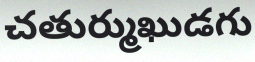
చతుర్ముఖుడగు